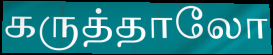
கருத்தாலோ